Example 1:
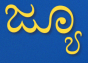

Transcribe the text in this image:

ಜ್ಯೂ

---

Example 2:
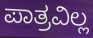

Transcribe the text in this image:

ಪಾತ್ರವಿಲ್ಲ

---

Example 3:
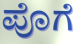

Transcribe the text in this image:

ಪೊಗೆ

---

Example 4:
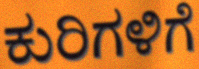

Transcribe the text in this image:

ಕುರಿಗಳಿಗೆ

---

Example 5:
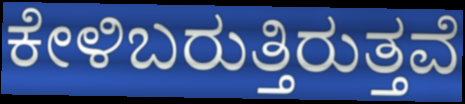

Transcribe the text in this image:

ಕೇಳಿಬರುತ್ತಿರುತ್ತವೆ